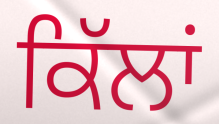
ਕਿੱਲਾਂ